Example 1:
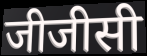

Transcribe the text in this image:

जीजीसी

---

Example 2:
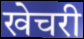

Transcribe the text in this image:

खेचरी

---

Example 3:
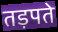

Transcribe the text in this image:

तड़पते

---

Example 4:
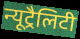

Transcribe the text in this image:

न्यूट्रैलिटी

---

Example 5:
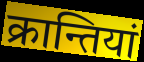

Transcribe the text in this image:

क्रान्तियां